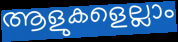
ആളുകളെല്ലാം